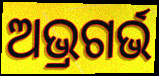
ଅଭ୍ରଗର୍ଭ